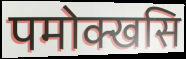
पमोक्खसि